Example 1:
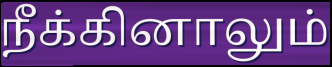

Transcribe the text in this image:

நீக்கினாலும்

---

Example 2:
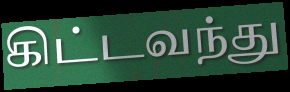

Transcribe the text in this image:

கிட்டவந்து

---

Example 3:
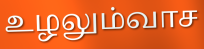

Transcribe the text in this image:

உழலும்வாச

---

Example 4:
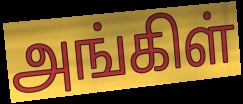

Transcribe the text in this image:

அங்கிள்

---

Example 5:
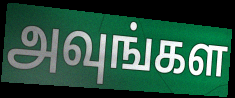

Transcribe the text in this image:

அவுங்கள